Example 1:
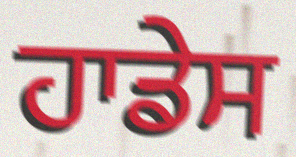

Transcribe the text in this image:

ਹਾਡੇਸ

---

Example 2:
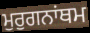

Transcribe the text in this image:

ਮੁਰੁਗਨਾਂਥਮ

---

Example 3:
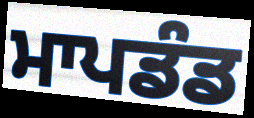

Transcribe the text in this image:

ਮਾਪਡੰਡ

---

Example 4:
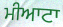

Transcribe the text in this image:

ਮੀਆਟਾ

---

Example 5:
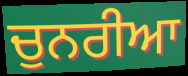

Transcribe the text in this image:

ਚੁਨਰੀਆ